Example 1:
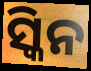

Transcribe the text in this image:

ସ୍କିନ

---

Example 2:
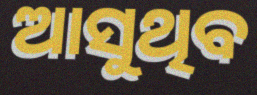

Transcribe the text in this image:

ଆସୁଥିବ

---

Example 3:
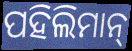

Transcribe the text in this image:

ପହିଲିମାନ୍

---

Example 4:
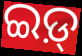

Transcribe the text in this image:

ଇଡ଼୍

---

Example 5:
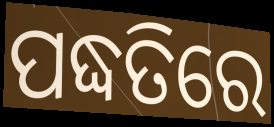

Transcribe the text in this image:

ପଦ୍ଧତିରେ